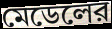
মেডেলের